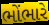
ભોંભારે